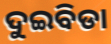
ଦୁଇବିଡା